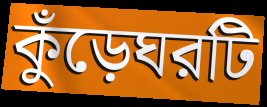
কুঁড়েঘরটি